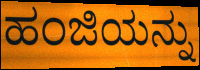
ಹಂಜಿಯನ್ನು